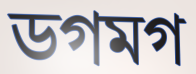
ডগমগ